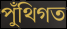
পুঁথিগত